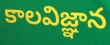
కాలవిజ్ఞాన